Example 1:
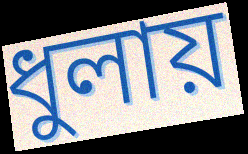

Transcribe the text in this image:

ধুলায়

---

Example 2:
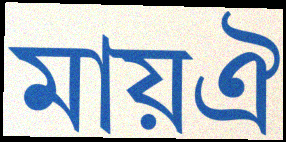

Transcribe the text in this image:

মায়ঐ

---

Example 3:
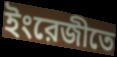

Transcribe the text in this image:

ইংরেজীতে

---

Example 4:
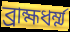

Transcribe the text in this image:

ব্রাহ্মধর্ম্ম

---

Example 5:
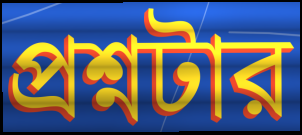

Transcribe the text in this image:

প্রশ্নটার